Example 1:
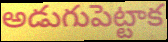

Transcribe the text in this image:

అడుగుపెట్టాక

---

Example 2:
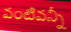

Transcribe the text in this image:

వంటివన్నీ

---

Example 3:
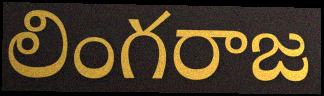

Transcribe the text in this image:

లింగరాజ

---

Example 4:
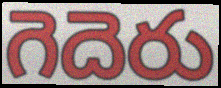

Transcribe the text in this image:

గెదెరు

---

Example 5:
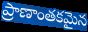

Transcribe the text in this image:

ప్రాణాంతకమైన